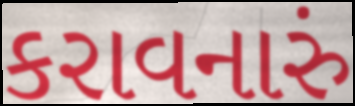
કરાવનારું